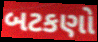
બટકણો